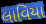
લાવિયા